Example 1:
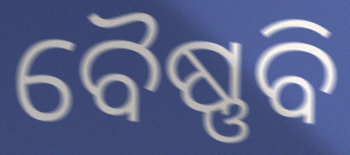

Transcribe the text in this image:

ବୈଷ୍ଣବି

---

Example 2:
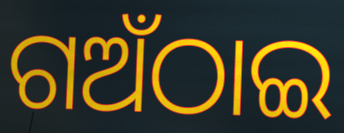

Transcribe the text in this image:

ଗଅଁଠାଇ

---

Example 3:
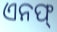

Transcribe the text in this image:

ଏନଫ୍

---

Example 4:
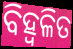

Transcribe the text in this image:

ବିହ୍ୱଳିତ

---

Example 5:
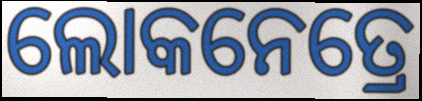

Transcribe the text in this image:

ଲୋକନେତ୍ରେ